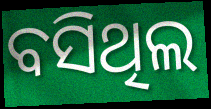
ବସିଥିଲ